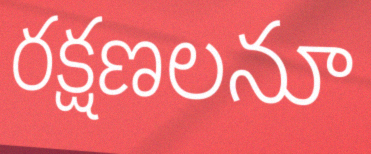
రక్షణలనూ